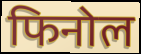
फिनोल